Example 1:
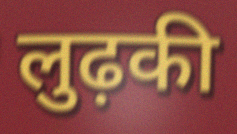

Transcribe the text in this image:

लुढ़की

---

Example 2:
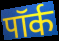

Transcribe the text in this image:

पॉर्क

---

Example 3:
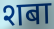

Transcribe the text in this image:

शबा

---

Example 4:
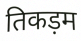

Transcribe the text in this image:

तिकड़म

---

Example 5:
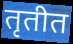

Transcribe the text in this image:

तृतीत